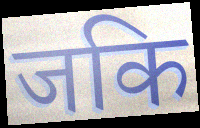
जकि